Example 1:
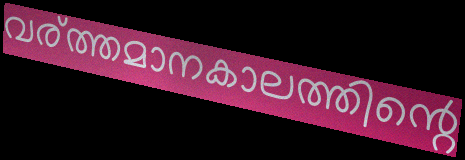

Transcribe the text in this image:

വര്ത്തമാനകാലത്തിന്റെ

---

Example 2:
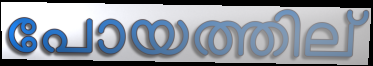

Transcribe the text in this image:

പോയത്തില്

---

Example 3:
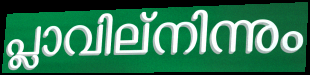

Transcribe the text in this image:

പ്ലാവില്നിന്നും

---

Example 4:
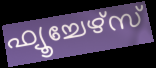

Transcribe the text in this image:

ഫ്യൂച്ചേഴ്സ്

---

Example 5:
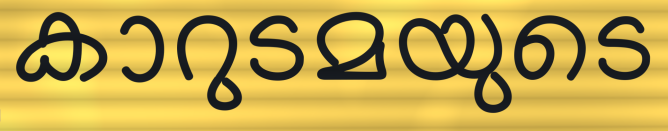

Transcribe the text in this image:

കാറുടമയുടെ